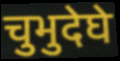
चुभुदेघे